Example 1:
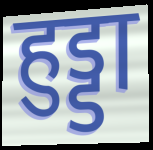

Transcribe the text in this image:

हुड्डा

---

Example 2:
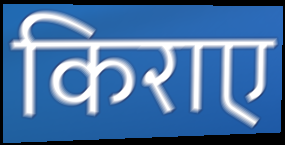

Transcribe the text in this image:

किराए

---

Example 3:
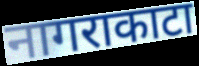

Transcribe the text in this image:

नागराकाटा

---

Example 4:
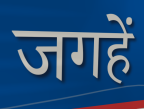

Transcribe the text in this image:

जगहें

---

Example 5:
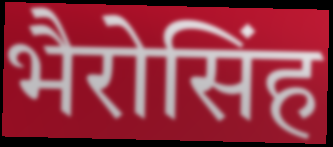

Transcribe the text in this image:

भैरोसिंह